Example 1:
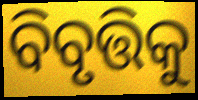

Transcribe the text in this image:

ବିବୃତ୍ତିକୁ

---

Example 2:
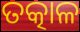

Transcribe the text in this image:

ତତ୍କାଳ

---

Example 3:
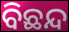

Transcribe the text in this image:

ବିଛନ୍ଦ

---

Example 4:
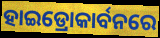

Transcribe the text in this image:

ହାଇଡ୍ରୋକାର୍ବନରେ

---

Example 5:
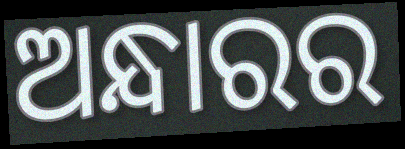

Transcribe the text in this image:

ଅନ୍ଧାରର